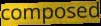
composed